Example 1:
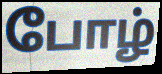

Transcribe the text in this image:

போழ்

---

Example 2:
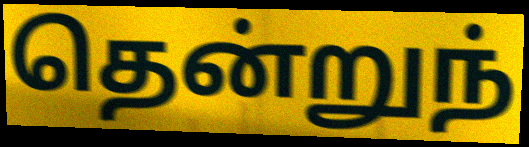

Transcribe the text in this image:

தென்றுந்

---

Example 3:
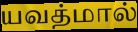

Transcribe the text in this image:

யவத்மால்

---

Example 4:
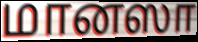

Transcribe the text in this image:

மானஸா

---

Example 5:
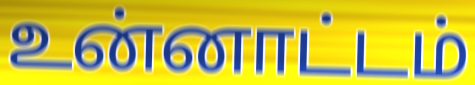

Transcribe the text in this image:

உன்னாட்டம்